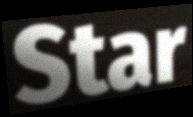
Star